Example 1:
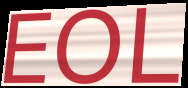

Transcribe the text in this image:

EOL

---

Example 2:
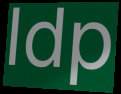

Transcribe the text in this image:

ldp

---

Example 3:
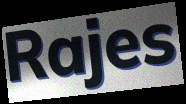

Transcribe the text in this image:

Rajes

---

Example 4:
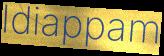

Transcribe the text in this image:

Idiappam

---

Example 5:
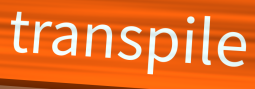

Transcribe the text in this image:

transpile